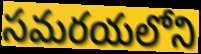
సమరయలోని